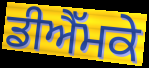
ਡੀਐੱਮਕੇ